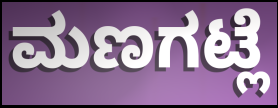
ಮಣಗಟ್ಲೆ